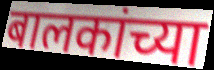
बालकांच्या